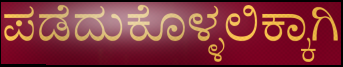
ಪಡೆದುಕೊಳ್ಳಲಿಕ್ಕಾಗಿ